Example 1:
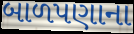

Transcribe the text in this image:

બાળપણાના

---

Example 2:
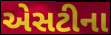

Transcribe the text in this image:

એસટીના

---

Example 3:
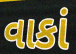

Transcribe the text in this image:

વાકાં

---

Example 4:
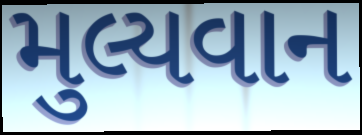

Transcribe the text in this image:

મુલ્યવાન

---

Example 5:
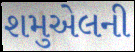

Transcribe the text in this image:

શમુએલની